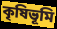
কৃষিভূমি